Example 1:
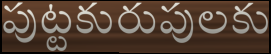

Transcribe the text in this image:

పుట్టకురుపులకు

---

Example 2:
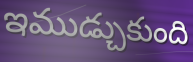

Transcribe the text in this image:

ఇముడ్చుకుంది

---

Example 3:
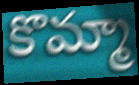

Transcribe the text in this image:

కొమ్మా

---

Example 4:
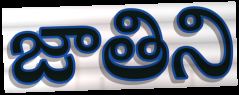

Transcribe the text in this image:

జాతిని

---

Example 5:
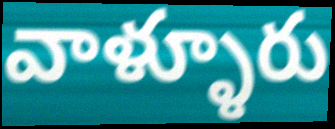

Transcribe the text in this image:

వాళ్ళూరు